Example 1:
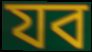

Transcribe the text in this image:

যব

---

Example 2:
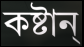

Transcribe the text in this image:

কষ্টান্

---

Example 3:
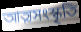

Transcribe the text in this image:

আত্মসংস্কৃতি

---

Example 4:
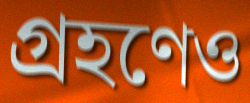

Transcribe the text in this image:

গ্রহণেও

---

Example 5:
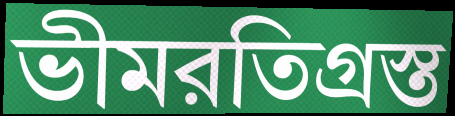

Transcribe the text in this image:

ভীমরতিগ্রস্ত